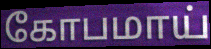
கோபமாய்